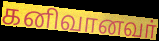
கனிவானவர்